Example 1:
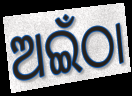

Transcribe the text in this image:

ଅଇଁଠା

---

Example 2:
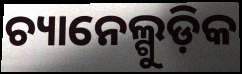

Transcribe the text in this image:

ଚ୍ୟାନେଲ୍ଗୁଡ଼ିକ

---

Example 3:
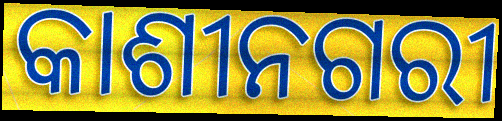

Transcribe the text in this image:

କାଶୀନଗରୀ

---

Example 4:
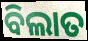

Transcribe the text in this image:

ବିଲାତ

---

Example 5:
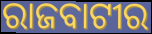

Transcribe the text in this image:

ରାଜବାଟୀର